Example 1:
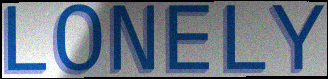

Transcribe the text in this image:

LONELY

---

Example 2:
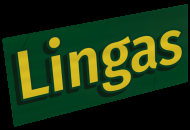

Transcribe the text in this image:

Lingas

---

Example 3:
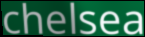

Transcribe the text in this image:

chelsea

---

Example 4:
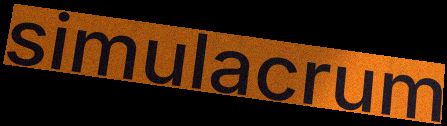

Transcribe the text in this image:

simulacrum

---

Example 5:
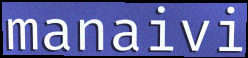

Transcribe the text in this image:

manaivi